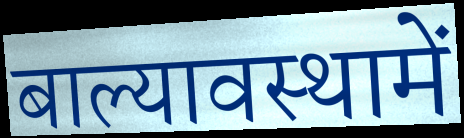
बाल्यावस्थामें